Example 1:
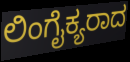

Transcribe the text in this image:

ಲಿಂಗೈಕ್ಯರಾದ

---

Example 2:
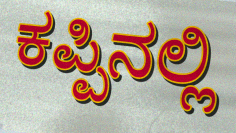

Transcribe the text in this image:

ಕಪ್ಪಿನಲ್ಲಿ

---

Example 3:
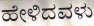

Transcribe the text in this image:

ಹೇಳಿದವಳು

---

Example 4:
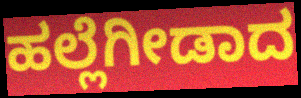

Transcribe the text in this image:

ಹಲ್ಲೆಗೀಡಾದ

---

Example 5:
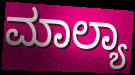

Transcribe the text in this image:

ಮಾಲ್ಯಾ